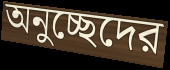
অনুচ্ছেদের